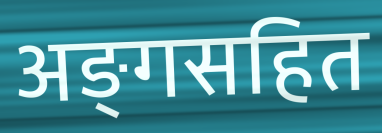
अङ्गसहित